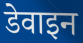
डेवाइन